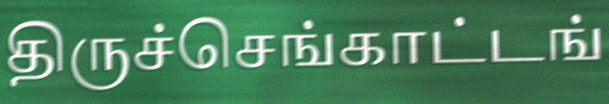
திருச்செங்காட்டங்